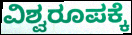
ವಿಶ್ವರೂಪಕ್ಕೆ